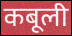
कबूली